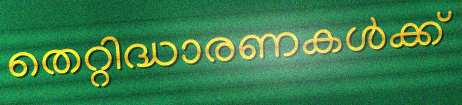
തെറ്റിദ്ധാരണകൾക്ക്